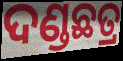
ଦଣ୍ଡଛତ୍ର